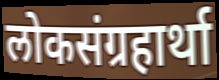
लोकसंग्रहार्था